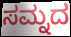
ಸಮ್ನದ